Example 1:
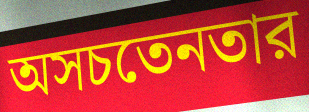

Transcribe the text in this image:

অসচতেনতার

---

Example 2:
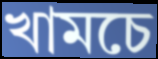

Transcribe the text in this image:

খামচে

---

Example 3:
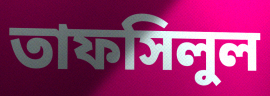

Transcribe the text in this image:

তাফসিলুল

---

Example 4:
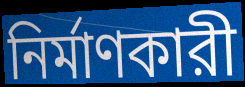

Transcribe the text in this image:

নির্মাণকারী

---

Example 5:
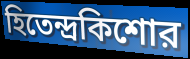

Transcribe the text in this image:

হিতেন্দ্রকিশোর